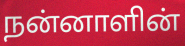
நன்னாளின்